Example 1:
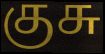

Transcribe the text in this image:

குசு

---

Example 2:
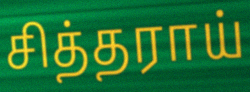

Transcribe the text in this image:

சித்தராய்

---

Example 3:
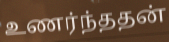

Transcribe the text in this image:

உணர்ந்ததன்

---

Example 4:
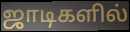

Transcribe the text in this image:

ஜாடிகளில்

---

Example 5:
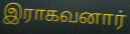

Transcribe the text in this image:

இராகவனார்